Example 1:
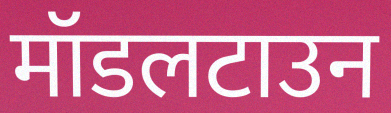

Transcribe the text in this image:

मॉडलटाउन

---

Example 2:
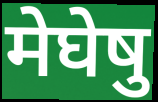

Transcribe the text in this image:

मेघेषु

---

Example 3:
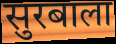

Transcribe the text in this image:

सुरबाला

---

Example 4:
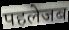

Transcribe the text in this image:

पहलेजब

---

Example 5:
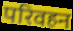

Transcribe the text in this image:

परिवहन